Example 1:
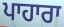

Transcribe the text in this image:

ਪਾਹਾਰਾ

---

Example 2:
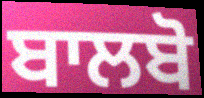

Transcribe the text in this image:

ਬਾਲਬੋ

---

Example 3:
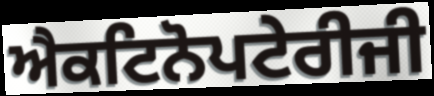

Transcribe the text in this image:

ਐਕਟਿਨੋਪਟੇਰੀਜੀ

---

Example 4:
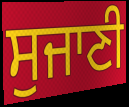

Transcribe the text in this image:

ਸੁਜਾਣੀ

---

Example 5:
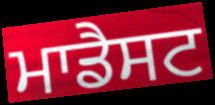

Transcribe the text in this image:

ਮਾਡੈਸਟ